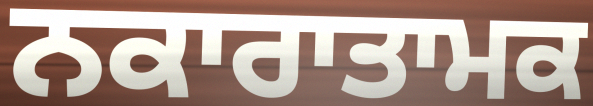
ਨਕਾਰਾਤਾਮਕ